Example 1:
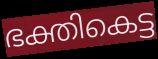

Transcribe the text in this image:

ഭക്തികെട്ട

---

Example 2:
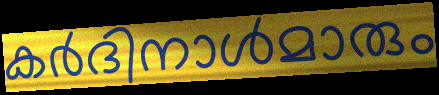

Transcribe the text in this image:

കർദിനാൾമാരും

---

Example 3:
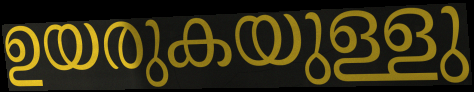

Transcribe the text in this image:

ഉയരുകയുള്ളു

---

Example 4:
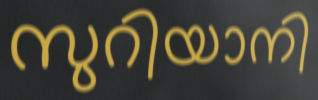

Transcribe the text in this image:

സുറിയാനി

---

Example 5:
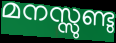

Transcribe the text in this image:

മനസ്സുണ്ടു